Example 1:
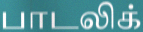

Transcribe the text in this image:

பாடலிக்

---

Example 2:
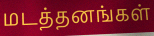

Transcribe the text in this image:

மடத்தனங்கள்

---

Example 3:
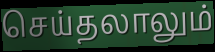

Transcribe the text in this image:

செய்தலாலும்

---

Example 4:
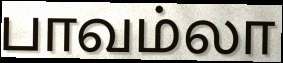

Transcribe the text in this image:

பாவம்லா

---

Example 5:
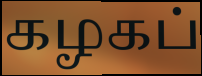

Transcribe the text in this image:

கழகப்